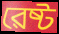
ৱেষ্ট